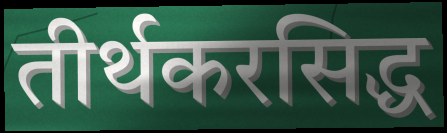
तीर्थकरसिद्ध